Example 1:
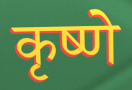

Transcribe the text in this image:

कृष्णे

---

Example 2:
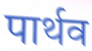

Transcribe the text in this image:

पार्थव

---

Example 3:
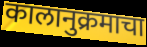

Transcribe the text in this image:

कालानुक्रमाचा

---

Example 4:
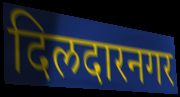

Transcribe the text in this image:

दिलदारनगर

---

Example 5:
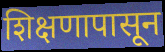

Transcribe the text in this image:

शिक्षणापासून